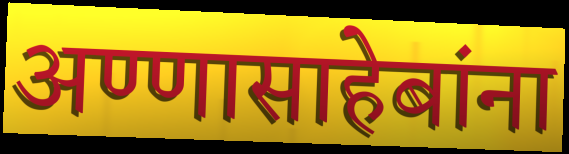
अण्णासाहेबांना